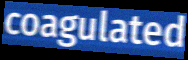
coagulated